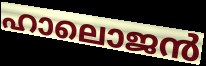
ഹാലൊജൻ